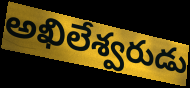
అఖిలేశ్వరుడు